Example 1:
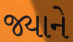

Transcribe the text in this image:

જ્યાને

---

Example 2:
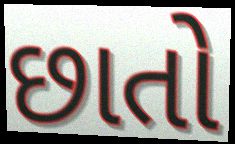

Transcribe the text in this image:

છાતો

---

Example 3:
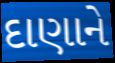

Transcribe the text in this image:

દાણાને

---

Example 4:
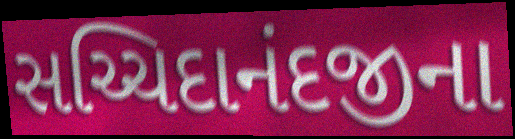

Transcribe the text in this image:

સચ્ચિદાનંદજીના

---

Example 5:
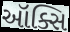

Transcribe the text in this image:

ઑક્સિ